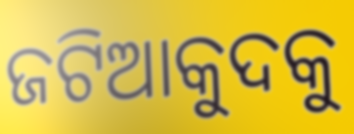
ଜଟିଆକୁଦକୁ